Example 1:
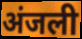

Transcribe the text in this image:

अंजली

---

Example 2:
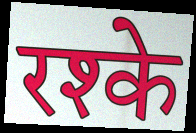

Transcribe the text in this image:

रश्के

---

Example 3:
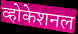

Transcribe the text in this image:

व्होकेशनल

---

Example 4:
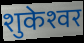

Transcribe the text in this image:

शुकेश्वर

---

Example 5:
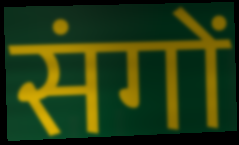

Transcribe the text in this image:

संगों